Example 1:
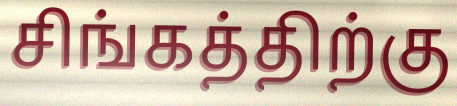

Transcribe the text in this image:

சிங்கத்திற்கு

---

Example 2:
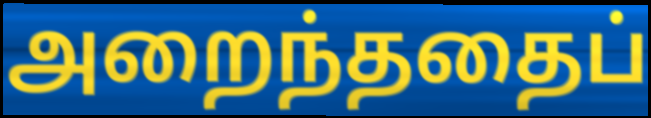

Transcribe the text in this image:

அறைந்ததைப்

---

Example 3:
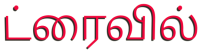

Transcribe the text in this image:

ட்ரைவில்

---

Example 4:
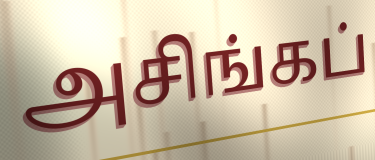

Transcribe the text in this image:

அசிங்கப்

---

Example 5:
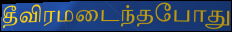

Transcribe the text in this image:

தீவிரமடைந்தபோது